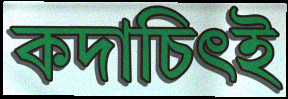
কদাচিৎই